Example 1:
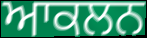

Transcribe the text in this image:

ਆਕਲਨ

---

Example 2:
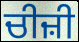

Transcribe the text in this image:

ਚੀਜ਼ੀ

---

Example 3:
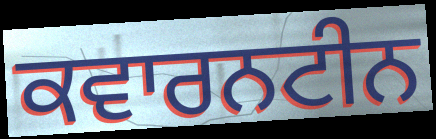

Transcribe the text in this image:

ਕਵਾਰਨਟੀਨ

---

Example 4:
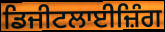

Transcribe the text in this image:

ਡਿਜੀਟਲਾਈਜ਼ਿੰਗ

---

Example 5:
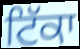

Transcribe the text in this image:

ਟਿੱਕਾ